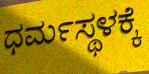
ಧರ್ಮಸ್ಥಳಕ್ಕೆ